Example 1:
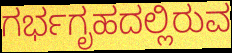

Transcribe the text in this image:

ಗರ್ಭಗೃಹದಲ್ಲಿರುವ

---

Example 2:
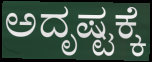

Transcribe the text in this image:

ಅದೃಷ್ಟಕ್ಕೆ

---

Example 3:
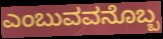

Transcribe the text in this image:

ಎಂಬುವವನೊಬ್ಬ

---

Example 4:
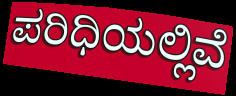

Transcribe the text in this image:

ಪರಿಧಿಯಲ್ಲಿವೆ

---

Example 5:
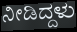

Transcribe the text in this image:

ನೀಡಿದ್ದಳು